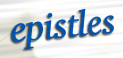
epistles